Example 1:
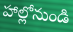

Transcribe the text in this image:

హాల్లోనుండి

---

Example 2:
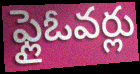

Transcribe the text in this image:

ఫ్లైఓవర్లు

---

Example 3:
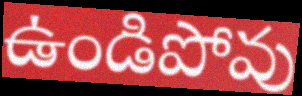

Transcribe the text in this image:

ఉండిపోవు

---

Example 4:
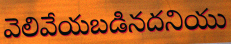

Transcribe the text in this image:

వెలివేయబడినదనియు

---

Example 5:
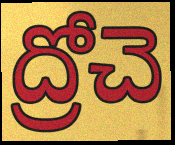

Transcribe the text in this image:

ద్రోచె